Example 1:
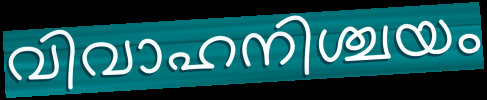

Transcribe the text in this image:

വിവാഹനിശ്ചയം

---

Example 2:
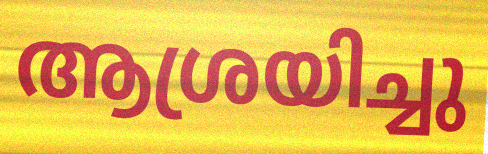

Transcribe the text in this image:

ആശ്രയിച്ചു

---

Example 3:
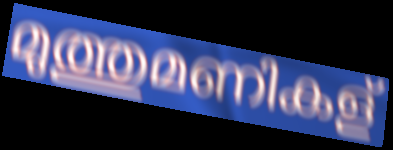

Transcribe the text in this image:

മുത്തുമണികള്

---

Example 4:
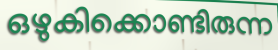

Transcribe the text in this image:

ഒഴുകിക്കൊണ്ടിരുന്ന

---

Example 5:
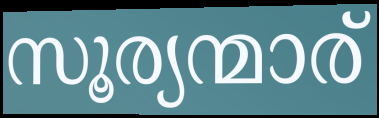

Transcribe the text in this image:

സൂര്യന്മാര്